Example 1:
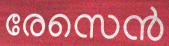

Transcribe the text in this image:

രേസെൻ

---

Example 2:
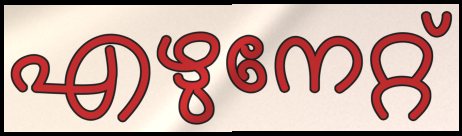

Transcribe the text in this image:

എഴുനേറ്റ്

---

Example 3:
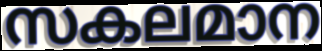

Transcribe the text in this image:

സകലമാന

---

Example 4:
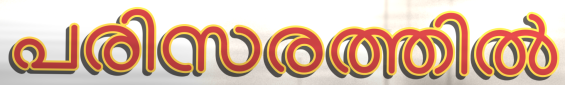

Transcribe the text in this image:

പരിസരത്തിൽ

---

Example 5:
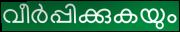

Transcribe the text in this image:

വീർപ്പിക്കുകയും